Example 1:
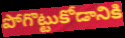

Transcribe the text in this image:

పోగొట్టుకోడానికి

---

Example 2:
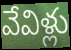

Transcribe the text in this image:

వేవిళ్లు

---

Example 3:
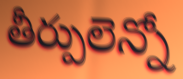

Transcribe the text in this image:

తీర్పులెన్నో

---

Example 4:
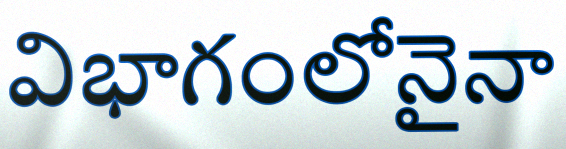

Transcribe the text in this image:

విభాగంలోనైనా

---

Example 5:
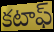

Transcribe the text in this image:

కటాఫ్